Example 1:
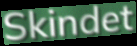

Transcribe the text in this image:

Skindet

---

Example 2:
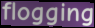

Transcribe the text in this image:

flogging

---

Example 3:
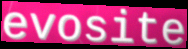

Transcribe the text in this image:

evosite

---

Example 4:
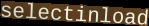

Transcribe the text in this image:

selectinload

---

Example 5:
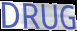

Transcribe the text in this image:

DRUG